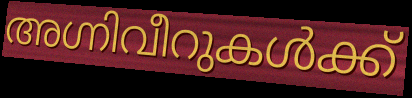
അഗ്നിവീറുകൾക്ക്